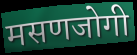
मसणजोगी